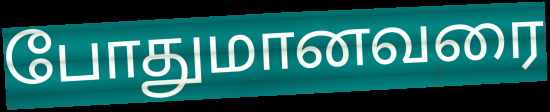
போதுமானவரை